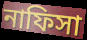
নাফিসা